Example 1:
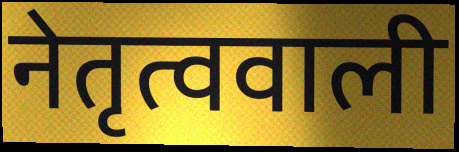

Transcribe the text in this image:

नेतृत्ववाली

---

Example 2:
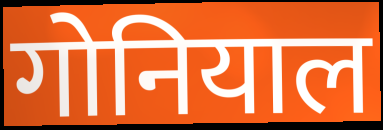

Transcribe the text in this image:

गोनियाल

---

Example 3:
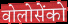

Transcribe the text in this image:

वोलोसेंको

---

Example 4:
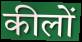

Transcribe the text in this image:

कीलों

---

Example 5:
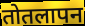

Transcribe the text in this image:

तोतलापन